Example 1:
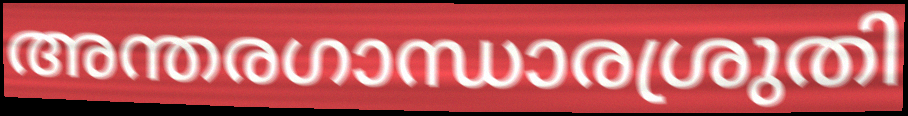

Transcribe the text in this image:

അന്തരഗാന്ധാരശ്രുതി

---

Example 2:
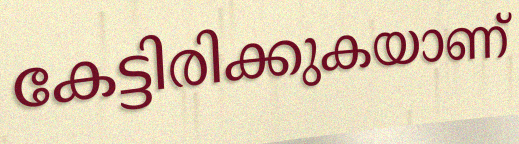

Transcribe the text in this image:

കേട്ടിരിക്കുകയാണ്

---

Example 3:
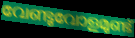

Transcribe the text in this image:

വേണ്ടുവോളമുണ്ട്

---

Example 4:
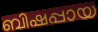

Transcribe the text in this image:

ബിഷപ്പായ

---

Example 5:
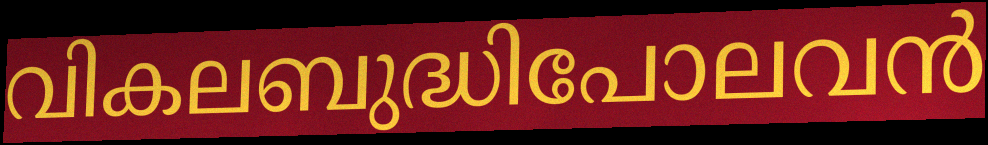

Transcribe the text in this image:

വികലബുദ്ധിപോലവൻ